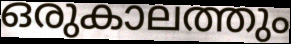
ഒരുകാലത്തും